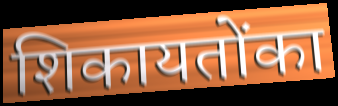
शिकायतोंका